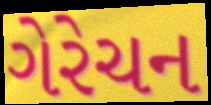
ગેરેચન